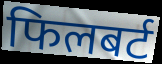
फिलबर्ट